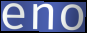
eno